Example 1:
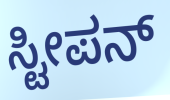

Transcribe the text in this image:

ಸ್ಟೀಪನ್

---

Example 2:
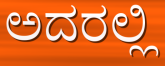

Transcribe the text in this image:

ಅದರಲ್ಲಿ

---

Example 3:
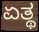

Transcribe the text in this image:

ಏತ್ಥ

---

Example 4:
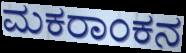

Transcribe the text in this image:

ಮಕರಾಂಕನ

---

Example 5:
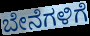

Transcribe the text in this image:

ಬೇನೆಗಳಿಗೆ